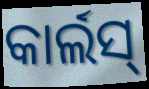
କାର୍ଲସ୍